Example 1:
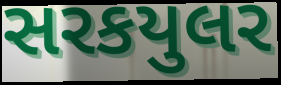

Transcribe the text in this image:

સરકયુલર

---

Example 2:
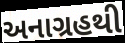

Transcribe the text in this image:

અનાગ્રહથી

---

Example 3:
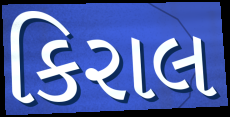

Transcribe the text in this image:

કિરાલ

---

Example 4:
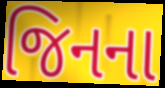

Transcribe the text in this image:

જિનના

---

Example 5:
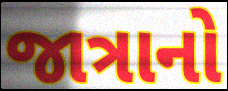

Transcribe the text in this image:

જાત્રાનો